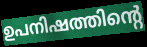
ഉപനിഷത്തിന്റെ